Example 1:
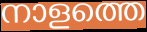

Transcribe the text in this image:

നാളത്തെ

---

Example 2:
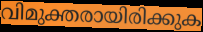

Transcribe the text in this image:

വിമുക്തരായിരിക്കുക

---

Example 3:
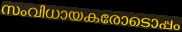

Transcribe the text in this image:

സംവിധായകരോടൊപ്പം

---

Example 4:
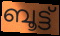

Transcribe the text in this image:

ബൂട്ട്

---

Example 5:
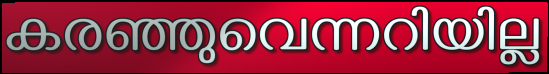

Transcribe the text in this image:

കരഞ്ഞുവെന്നറിയില്ല